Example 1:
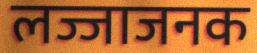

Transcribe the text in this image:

लज्जाजनक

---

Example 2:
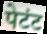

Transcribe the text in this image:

पेटंट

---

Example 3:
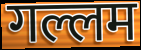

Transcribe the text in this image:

गल्लम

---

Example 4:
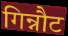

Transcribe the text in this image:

गिन्नौट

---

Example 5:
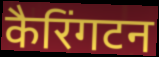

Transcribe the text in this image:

कैरिंगटन